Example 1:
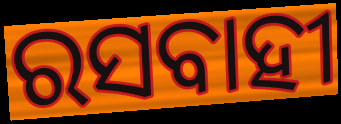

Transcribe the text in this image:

ରସବାହୀ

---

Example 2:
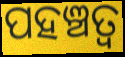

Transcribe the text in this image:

ପହଞ୍ଚତ୍ବ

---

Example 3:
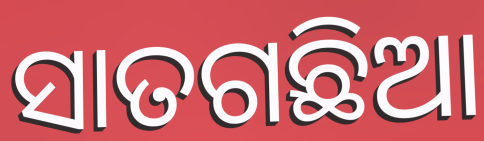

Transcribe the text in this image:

ସାତଗଛିଆ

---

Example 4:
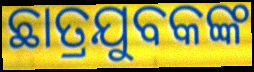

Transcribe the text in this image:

ଛାତ୍ରଯୁବକଙ୍କ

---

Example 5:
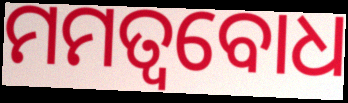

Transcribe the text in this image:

ମମତ୍ବବୋଧ